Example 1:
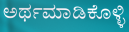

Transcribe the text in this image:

ಅರ್ಥಮಾಡಿಕೊಳ್ಳಿ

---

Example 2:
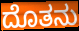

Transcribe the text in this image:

ದೊತನು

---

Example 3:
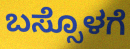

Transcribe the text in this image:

ಬಸ್ಸೊಳಗೆ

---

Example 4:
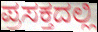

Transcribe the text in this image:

ಪ್ರಸಕ್ತದಲ್ಲಿ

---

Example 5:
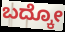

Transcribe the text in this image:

ಬದ್ಕೋ